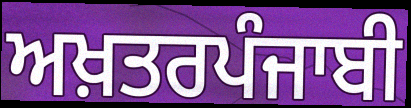
ਅਖ਼ਤਰਪੰਜਾਬੀ